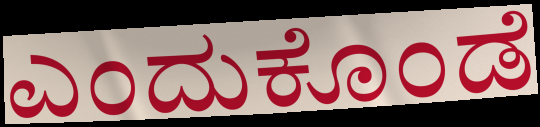
ಎಂದುಕೊಂಡೆ